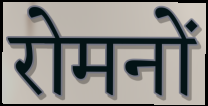
रोमनों